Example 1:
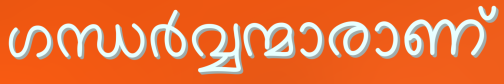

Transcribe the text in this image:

ഗന്ധർവ്വന്മാരാണ്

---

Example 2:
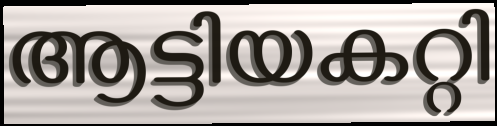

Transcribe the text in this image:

ആട്ടിയകറ്റി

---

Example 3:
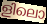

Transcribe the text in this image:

ളിലൊ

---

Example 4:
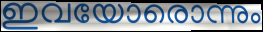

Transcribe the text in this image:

ഇവയോരൊന്നും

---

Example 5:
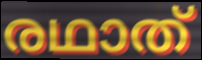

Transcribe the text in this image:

രഥാത്